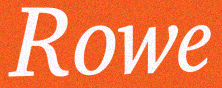
Rowe